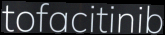
tofacitinib